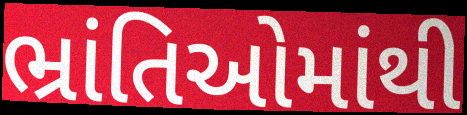
ભ્રાંતિઓમાંથી